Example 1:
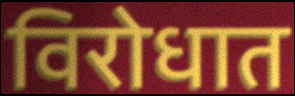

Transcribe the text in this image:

विरोधात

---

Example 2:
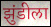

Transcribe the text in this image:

झुंडीला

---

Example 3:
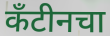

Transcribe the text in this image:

कँटीनचा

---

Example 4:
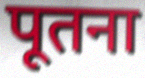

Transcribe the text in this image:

पूतना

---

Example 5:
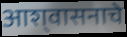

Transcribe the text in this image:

आश्वासनाचे